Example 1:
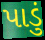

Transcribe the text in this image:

પાડું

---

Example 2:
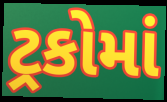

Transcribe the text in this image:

ટ્રકોમાં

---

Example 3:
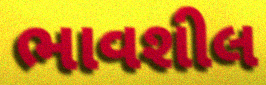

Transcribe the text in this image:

ભાવશીલ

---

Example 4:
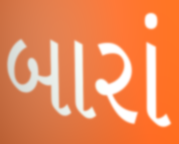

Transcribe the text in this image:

બારાં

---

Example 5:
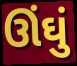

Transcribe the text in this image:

ઊંઘું